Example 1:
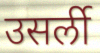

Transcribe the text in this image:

उसर्ली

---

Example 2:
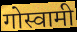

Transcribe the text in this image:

गोस्वामी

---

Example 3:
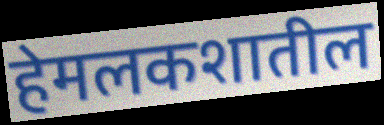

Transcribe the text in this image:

हेमलकशातील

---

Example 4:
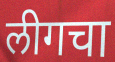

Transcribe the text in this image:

लीगचा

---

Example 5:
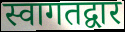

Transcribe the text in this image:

स्वागतद्वार